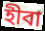
হীবা